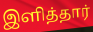
இளித்தார்